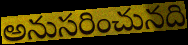
అనుసరించునది